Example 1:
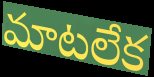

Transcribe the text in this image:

మాటలేక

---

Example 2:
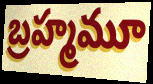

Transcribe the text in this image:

బ్రహ్మమూ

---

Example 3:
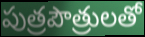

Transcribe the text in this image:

పుత్రపౌత్రులతో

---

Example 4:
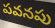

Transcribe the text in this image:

పవనపు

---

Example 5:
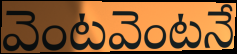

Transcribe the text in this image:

వెంటవెంటనే